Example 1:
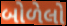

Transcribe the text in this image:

બોળેલો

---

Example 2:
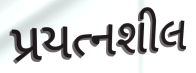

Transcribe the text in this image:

પ્રયત્નશીલ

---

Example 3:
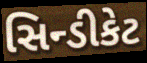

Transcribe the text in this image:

સિન્ડીકેટ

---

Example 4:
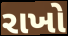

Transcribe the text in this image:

રાખો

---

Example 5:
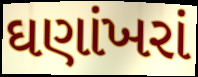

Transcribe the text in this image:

ઘણાંખરાં